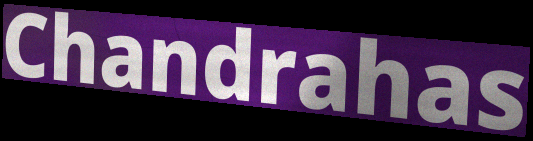
Chandrahas